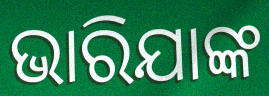
ଭାରିଯାଙ୍କ